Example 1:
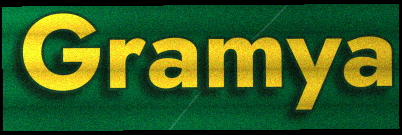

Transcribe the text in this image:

Gramya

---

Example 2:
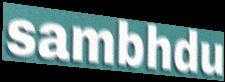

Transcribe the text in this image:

sambhdu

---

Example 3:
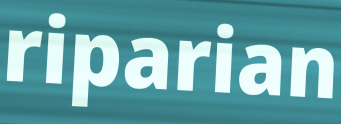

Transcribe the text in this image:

riparian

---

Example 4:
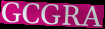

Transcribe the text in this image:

GCGRA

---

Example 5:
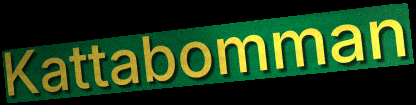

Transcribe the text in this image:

Kattabomman